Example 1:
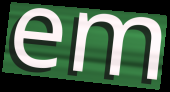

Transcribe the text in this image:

em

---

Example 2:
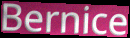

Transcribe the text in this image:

Bernice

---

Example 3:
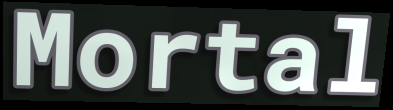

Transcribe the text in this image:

Mortal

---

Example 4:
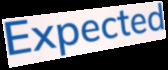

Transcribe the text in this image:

Expected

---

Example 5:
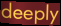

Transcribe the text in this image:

deeply